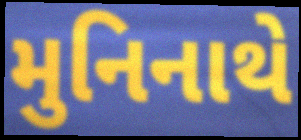
મુનિનાથે